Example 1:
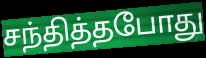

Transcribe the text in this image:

சந்தித்தபோது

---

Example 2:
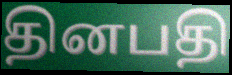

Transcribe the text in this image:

தினபதி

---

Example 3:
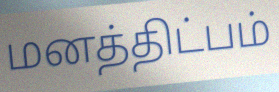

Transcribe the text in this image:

மனத்திட்பம்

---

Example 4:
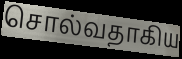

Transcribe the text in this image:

சொல்வதாகிய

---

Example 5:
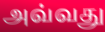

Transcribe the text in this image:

அவ்வது